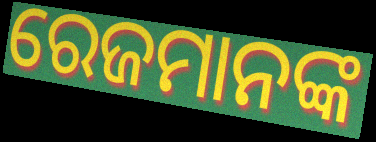
ରେଜମାନଙ୍କ